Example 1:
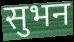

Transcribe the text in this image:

सुभन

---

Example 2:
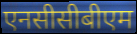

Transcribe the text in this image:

एनसीसीबीएम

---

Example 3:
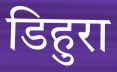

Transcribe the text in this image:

डिहुरा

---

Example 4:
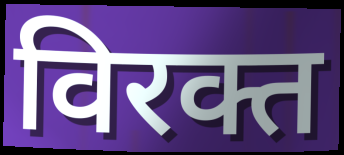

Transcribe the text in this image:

विरक्त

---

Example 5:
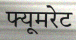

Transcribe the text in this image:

फ्यूमरेट